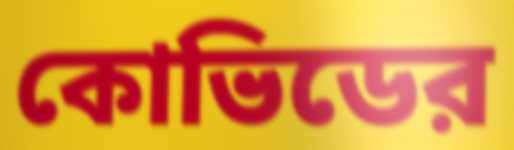
কোভিডের